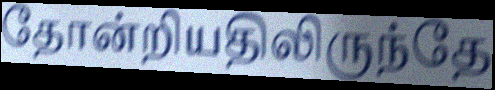
தோன்றியதிலிருந்தே